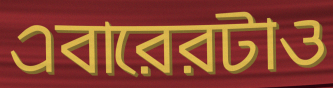
এবারেরটাও